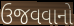
ઉજવવાનો